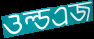
ওল্ডএজ